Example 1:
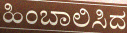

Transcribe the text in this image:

ಹಿಂಬಾಲಿಸಿದ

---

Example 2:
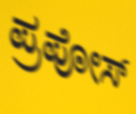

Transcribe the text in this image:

ಪ್ರಪೋಸ್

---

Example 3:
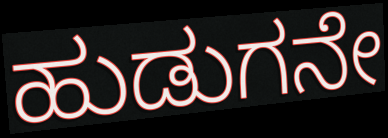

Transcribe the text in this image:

ಹುಡುಗನೇ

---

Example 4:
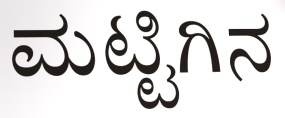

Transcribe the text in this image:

ಮಟ್ಟಿಗಿನ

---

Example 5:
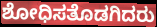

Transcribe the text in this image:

ಶೋಧಿಸತೊಡಗಿದರು